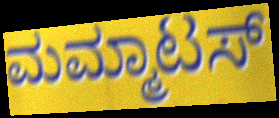
ಮಮ್ಮಾಟಸ್